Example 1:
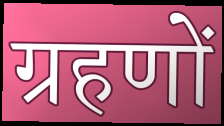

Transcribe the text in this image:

ग्रहणों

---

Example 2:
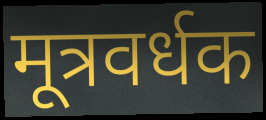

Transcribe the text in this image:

मूत्रवर्धक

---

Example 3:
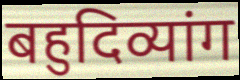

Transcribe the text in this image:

बहुदिव्यांग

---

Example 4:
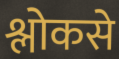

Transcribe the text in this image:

श्लोकसे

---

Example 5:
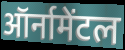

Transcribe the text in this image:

ऑर्नामेंटल